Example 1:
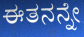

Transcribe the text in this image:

ಈತನನ್ನೇ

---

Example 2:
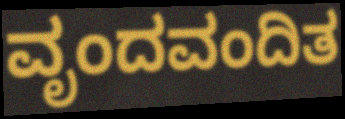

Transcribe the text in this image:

ವೃಂದವಂದಿತ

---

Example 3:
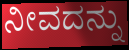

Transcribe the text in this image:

ನೀವದನ್ನು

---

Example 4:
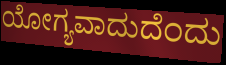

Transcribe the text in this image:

ಯೋಗ್ಯವಾದುದೆಂದು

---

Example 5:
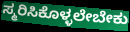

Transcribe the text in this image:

ಸ್ಮರಿಸಿಕೊಳ್ಳಲೇಬೇಕು